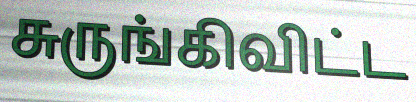
சுருங்கிவிட்ட